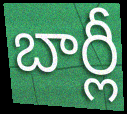
బార్లీ